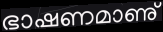
ഭാഷണമാണു്